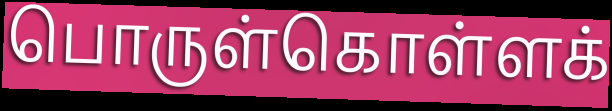
பொருள்கொள்ளக்